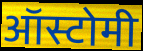
ऑस्टोमी